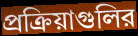
প্রক্রিয়াগুলির